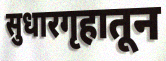
सुधारगृहातून